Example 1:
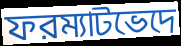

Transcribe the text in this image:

ফরম্যাটভেদে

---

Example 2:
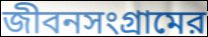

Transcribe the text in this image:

জীবনসংগ্রামের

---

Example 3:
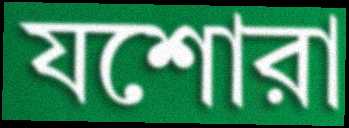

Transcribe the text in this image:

যশোরা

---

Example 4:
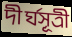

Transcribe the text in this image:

দীর্ঘসূত্রী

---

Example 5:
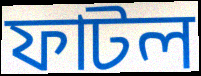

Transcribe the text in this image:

ফাটল